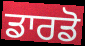
ਡਾਰਡੋ